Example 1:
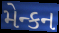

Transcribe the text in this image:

મેન્કન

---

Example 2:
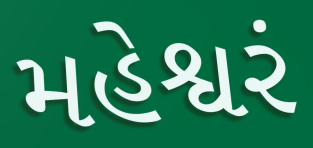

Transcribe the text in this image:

મહેશ્વરં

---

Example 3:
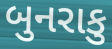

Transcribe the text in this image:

બુનરાકુ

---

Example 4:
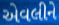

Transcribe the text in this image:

એવલીને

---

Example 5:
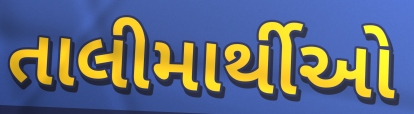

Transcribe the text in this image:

તાલીમાર્થીઓ